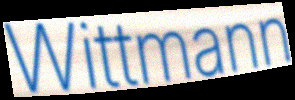
Wittmann